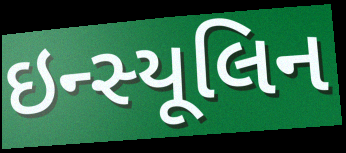
ઇન્સ્યૂલિન